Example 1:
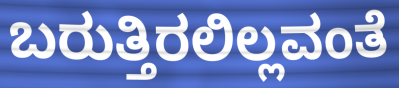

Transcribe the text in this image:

ಬರುತ್ತಿರಲಿಲ್ಲವಂತೆ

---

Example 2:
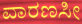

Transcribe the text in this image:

ವಾರಣಸೀ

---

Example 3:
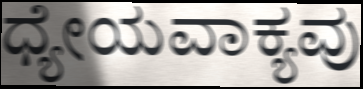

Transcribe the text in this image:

ಧ್ಯೇಯವಾಕ್ಯವು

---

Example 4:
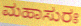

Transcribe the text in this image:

ಮಹಾಸುರಃ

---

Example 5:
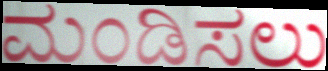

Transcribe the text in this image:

ಮಂಡಿಸಲು